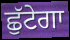
ਛੁੱਟੇਗਾ